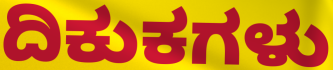
ದಿಕುಕಗಳು